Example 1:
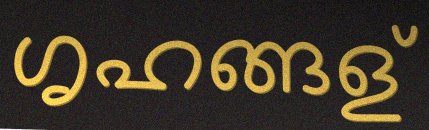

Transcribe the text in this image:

ഗൃഹങ്ങള്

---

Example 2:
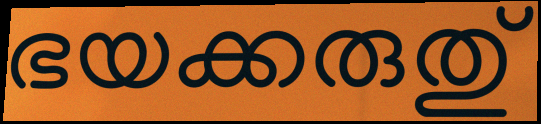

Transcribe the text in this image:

ഭയക്കരുതു്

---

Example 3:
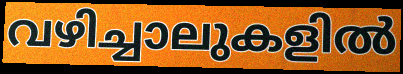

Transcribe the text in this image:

വഴിച്ചാലുകളിൽ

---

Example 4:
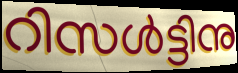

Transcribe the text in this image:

റിസൾട്ടിനു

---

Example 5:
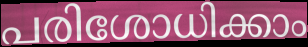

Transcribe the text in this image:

പരിശോധിക്കാം